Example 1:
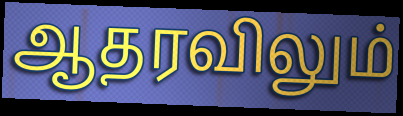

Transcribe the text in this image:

ஆதரவிலும்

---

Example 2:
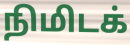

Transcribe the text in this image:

நிமிடக்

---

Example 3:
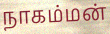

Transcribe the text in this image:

நாகம்மன்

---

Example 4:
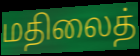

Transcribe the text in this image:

மதிலைத்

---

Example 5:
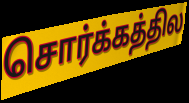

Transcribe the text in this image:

சொர்க்கத்தில